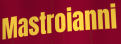
Mastroianni